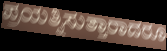
ಪ್ರಯತ್ನಿಸುತ್ತಾರಾದರೂ